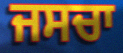
ਜਸਚਾ